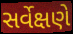
સર્વેક્ષણે